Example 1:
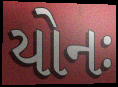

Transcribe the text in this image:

યોનઃ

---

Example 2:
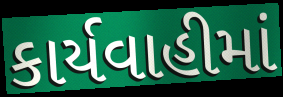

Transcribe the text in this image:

કાર્યવાહીમાં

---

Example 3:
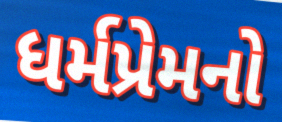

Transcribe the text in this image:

ધર્મપ્રેમનો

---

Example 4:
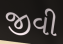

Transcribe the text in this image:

જીવી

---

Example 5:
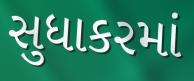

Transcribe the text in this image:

સુધાકરમાં